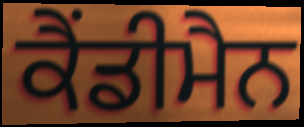
ਕੈਂਡੀਮੈਨ